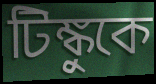
টিঙ্কুকে